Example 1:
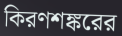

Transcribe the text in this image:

কিরণশঙ্করের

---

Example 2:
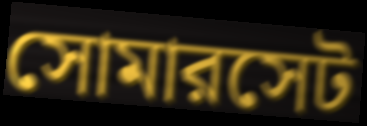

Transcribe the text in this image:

সোমারসেট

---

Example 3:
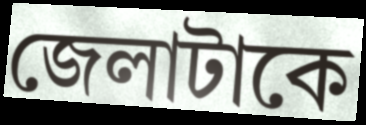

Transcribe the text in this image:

জেলাটাকে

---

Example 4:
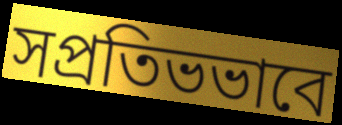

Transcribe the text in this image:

সপ্রতিভভাবে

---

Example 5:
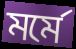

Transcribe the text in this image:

মর্মে